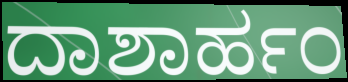
ದಾಶಾರ್ಹಂ